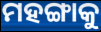
ମହଙ୍ଗାକୁ